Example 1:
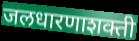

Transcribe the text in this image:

जलधारणाशक्ती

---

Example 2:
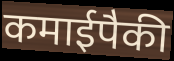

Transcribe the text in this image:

कमाईपैकी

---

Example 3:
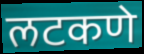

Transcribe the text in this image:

लटकणे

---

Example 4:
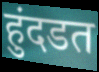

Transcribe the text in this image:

हुंदडत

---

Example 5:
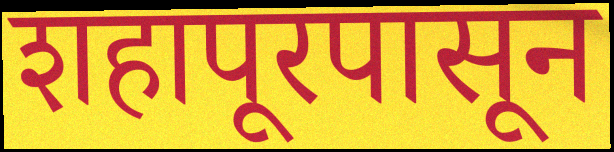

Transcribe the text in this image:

शहापूरपासून